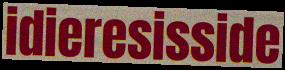
idieresisside